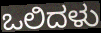
ಒಲಿದಳು